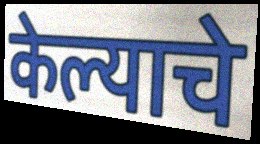
केल्याचे